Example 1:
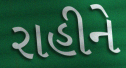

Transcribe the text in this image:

રાહીને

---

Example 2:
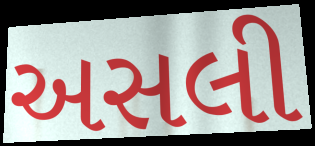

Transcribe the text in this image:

અસલી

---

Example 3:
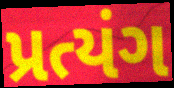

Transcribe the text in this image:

પ્રત્યંગ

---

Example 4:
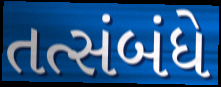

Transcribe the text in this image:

તત્સંબંધે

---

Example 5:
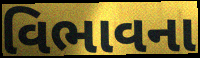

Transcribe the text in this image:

વિભાવના